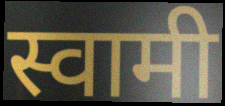
स्वामी